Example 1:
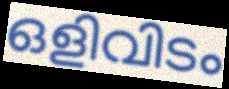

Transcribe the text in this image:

ഒളിവിടം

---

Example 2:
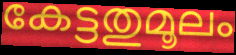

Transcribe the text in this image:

കേട്ടതുമൂലം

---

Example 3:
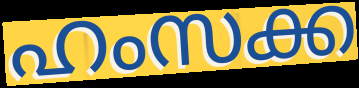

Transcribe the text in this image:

ഹംസക്ക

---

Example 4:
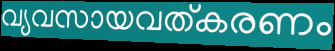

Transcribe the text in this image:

വ്യവസായവത്കരണം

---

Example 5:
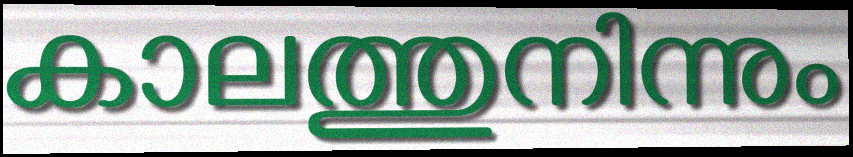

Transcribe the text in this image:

കാലത്തുനിന്നും